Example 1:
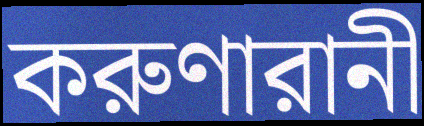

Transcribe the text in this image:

করুণারানী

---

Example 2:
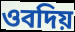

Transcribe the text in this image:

ওবদিয়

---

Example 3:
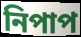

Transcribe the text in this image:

নিপাপ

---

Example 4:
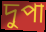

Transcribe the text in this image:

দুপা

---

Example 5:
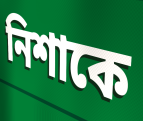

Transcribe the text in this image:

নিশাকে